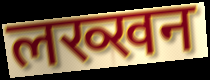
लख्खन